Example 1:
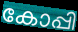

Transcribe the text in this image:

കോപ്പി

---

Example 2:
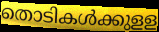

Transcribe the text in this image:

തൊടികൾക്കുളള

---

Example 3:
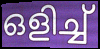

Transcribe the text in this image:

ഒളിച്ച്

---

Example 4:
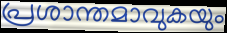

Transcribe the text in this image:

പ്രശാന്തമാവുകയും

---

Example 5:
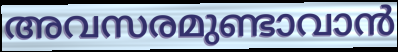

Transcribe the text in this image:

അവസരമുണ്ടാവാൻ